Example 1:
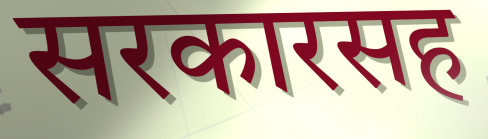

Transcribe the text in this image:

सरकारसह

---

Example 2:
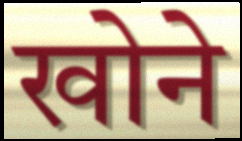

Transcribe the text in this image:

खोने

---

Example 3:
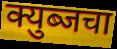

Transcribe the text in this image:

क्युब्जचा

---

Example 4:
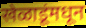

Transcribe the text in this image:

खेळाडूंमधून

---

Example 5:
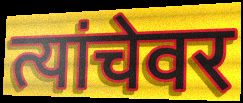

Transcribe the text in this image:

त्यांचेवर